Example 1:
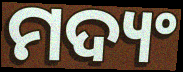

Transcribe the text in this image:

ମଦ୍ୟଂ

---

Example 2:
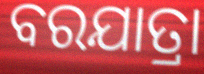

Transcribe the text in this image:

ବରଯାତ୍ରା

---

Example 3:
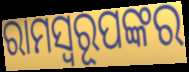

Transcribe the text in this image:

ରାମସ୍ୱରୂପଙ୍କର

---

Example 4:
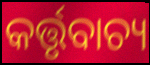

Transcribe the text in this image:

କର୍ତ୍ତୃବାଚ୍ୟ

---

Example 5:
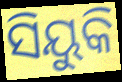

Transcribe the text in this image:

ସିୟୁକି